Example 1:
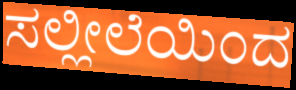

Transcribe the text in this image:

ಸಲ್ಲೀಲೆಯಿಂದ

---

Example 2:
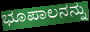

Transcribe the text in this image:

ಭೂಪಾಲನನ್ನು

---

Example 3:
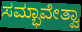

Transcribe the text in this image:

ಸಮ್ಭಾವೇತ್ವಾ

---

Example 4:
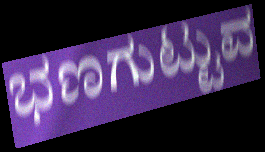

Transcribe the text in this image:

ಭಣಗುಟ್ಟುವ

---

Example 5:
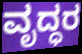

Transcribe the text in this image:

ವೃದ್ಧರ